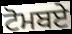
ਟੋਮਬਏ